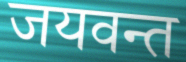
जयवन्त